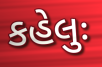
કહેલુઃ